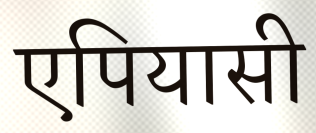
एपियासी